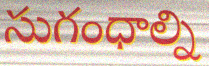
సుగంధాల్ని